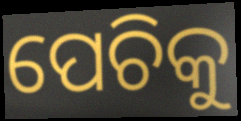
ପେଚିକୁ